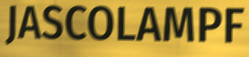
JASCOLAMPF